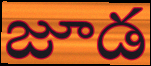
జూడ